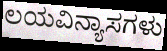
ಲಯವಿನ್ಯಾಸಗಳು